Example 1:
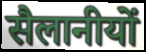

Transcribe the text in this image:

सैलानीयों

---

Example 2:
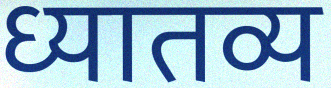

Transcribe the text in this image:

ध्यातव्य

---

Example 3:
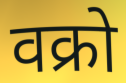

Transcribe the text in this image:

वक्रो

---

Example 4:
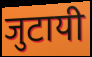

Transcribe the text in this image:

जुटायी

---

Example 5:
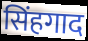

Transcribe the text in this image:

सिंहगाद